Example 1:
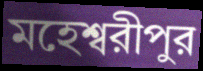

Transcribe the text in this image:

মহেশ্বরীপুর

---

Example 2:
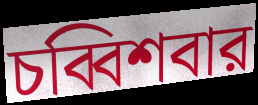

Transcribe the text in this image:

চব্বিশবার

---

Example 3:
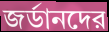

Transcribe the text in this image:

জর্ডানদের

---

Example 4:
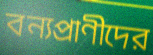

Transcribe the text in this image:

বন্যপ্রাণীদের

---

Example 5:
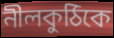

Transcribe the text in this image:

নীলকুঠিকে